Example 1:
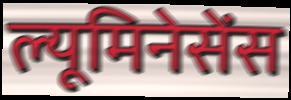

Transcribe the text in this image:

ल्यूमिनेसेंस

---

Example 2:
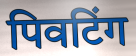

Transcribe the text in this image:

पिवटिंग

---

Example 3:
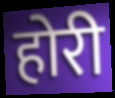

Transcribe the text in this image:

होरी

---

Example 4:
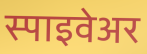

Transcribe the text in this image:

स्पाइवेअर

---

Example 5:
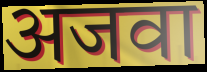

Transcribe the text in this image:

अजवा